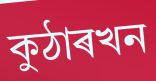
কুঠাৰখন